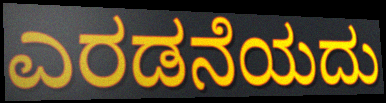
ಎರಡನೆಯದು